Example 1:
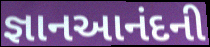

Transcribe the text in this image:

જ્ઞાનઆનંદની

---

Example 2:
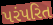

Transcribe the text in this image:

પરંપરિત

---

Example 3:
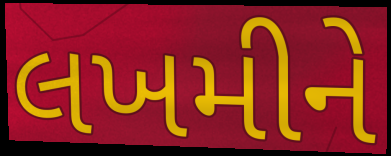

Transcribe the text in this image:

લખમીને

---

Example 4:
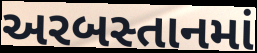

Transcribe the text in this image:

અરબસ્તાનમાં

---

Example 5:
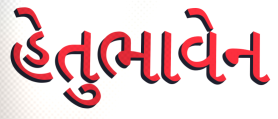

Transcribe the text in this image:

હેતુભાવેન